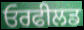
ਓਰਫੀਲਡ